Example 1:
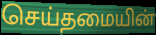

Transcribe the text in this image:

செய்தமையின்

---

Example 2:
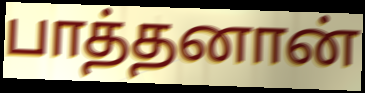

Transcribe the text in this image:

பாத்தனான்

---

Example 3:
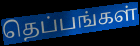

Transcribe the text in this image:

தெப்பங்கள்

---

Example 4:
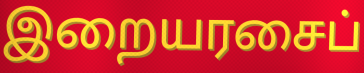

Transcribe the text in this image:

இறையரசைப்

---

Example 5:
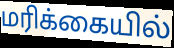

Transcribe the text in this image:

மரிக்கையில்